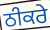
ਠੀਕਰੇ